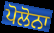
ਪੋਲੋਨਾ